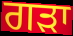
ਗੜਾ